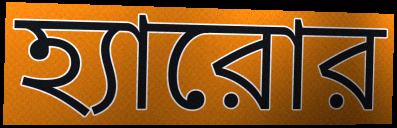
হ্যারোর